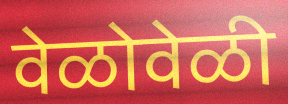
वेळोवेळी